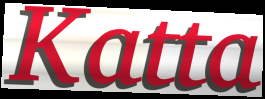
Katta